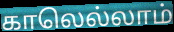
காலெல்லாம்